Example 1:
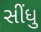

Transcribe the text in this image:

સીંધુ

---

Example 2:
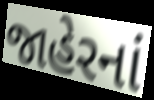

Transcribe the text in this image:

જાહેરનાં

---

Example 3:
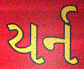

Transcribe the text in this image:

યર્ન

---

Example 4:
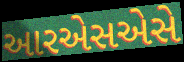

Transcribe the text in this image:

આરએસએસે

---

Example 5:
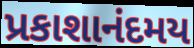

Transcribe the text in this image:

પ્રકાશાનંદમય